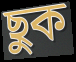
ছুক